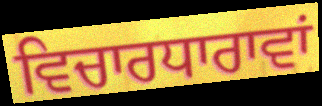
ਵਿਚਾਰਧਾਰਾਵਾਂ